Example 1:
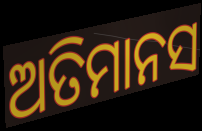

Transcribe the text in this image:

ଅତିମାନସ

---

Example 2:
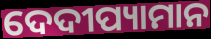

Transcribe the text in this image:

ଦେଦୀପ୍ୟାମାନ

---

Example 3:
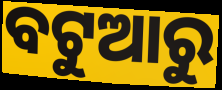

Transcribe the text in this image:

ବଟୁଆରୁ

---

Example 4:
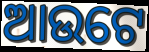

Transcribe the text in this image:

ଆଉଟେ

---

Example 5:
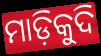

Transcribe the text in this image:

ମାଡ଼ିକୁଦି